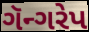
ગૅન્ગરેપ